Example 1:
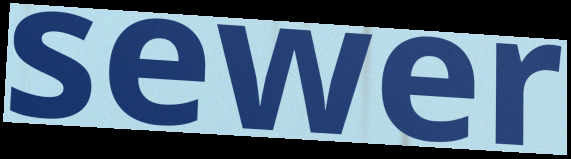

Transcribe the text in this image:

sewer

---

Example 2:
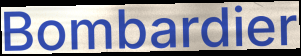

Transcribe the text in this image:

Bombardier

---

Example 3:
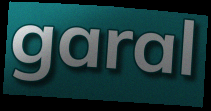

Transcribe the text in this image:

garal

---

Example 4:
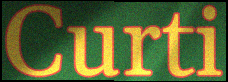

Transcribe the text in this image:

Curti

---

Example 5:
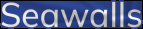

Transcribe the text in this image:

Seawalls